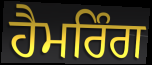
ਹੈਮਰਿੰਗ